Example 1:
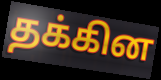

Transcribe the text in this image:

தக்கின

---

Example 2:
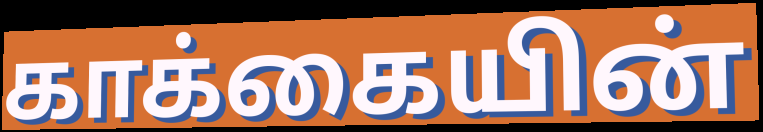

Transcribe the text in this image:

காக்கையின்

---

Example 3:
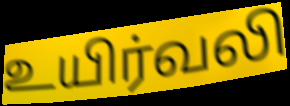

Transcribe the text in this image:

உயிர்வலி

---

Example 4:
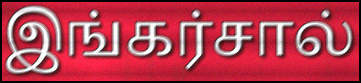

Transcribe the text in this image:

இங்கர்சால்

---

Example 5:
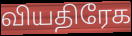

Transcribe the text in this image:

வியதிரேக